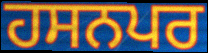
ਹਸਨਪਰ